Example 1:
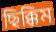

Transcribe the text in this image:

ছিক্কিম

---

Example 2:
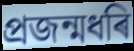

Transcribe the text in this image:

প্ৰজন্মধৰি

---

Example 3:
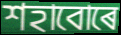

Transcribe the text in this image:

শহাবোৰে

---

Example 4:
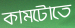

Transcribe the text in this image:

কামটোতে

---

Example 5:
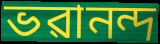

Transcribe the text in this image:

ভৱানন্দ